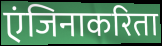
एंजिनाकरिता